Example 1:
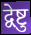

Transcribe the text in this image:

द्वेष्टु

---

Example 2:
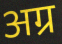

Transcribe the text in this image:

अग्र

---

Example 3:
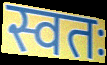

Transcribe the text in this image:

स्वतः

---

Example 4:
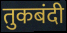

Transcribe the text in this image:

तुकबंदी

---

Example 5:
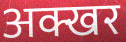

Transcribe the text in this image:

अक्खर